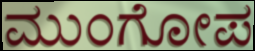
ಮುಂಗೋಪ